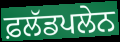
ਫ਼ਲੱਡਪਲੇਨ